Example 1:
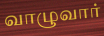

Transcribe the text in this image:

வாழுவார்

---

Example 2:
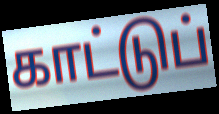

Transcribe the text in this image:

காட்டுப்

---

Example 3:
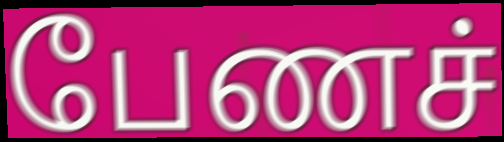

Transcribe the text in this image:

பேணச்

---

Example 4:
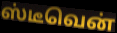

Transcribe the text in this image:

ஸ்டீவென்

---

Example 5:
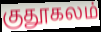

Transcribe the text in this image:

குதூகலம்